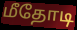
மீதோடி